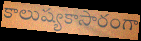
కాలుష్యకాసారంగా